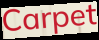
Carpet